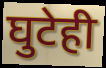
घुटेही